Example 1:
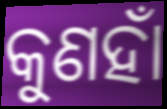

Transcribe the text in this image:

କୁଣହାଁ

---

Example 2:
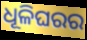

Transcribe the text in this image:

ଧୂଳିଘରର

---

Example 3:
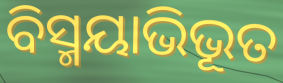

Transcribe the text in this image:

ବିସ୍ମୟାଭିଭୂତ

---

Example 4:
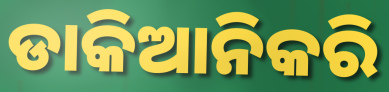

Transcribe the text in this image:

ଡାକିଆନିକରି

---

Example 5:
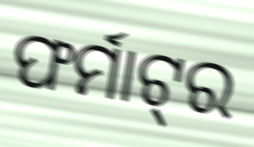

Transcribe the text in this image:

ଫର୍ମାଟ୍‌ର